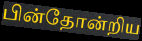
பின்தோன்றிய